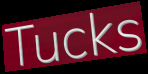
Tucks